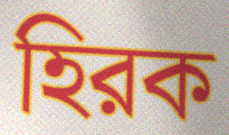
হিরক